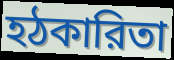
হঠকারিতা